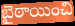
బైఠాయించి